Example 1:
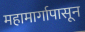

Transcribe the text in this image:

महामार्गापासून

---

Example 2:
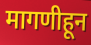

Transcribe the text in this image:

मागणीहून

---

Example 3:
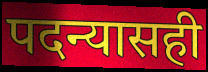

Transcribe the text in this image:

पदन्यासही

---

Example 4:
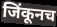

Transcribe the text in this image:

जिंकूनच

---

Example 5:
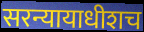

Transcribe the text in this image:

सरन्यायाधीशच